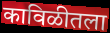
काविळीतला